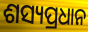
ଶସ୍ୟପ୍ରଧାନ